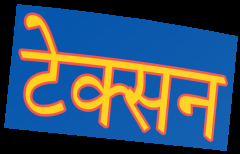
टेक्सन